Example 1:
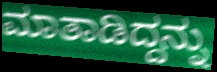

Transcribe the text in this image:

ಮಾತಾಡಿದ್ದನ್ನು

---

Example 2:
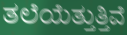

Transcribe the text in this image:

ತಲೆಯೆತ್ತುತ್ತಿವೆ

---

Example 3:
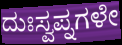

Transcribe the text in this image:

ದುಃಸ್ವಪ್ನಗಳೇ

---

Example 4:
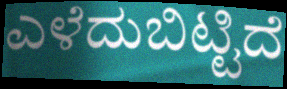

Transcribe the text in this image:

ಎಳೆದುಬಿಟ್ಟಿದೆ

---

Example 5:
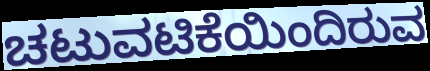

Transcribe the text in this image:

ಚಟುವಟಿಕೆಯಿಂದಿರುವ